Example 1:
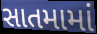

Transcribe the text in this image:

સાતમામાં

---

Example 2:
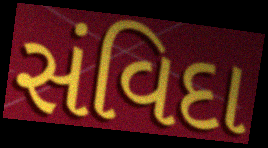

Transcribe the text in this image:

સંવિદા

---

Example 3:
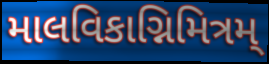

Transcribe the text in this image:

માલવિકાગ્નિમિત્રમ્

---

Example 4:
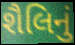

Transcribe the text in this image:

શૈલિનું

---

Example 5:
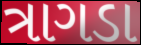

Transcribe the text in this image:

ત્રાગડા